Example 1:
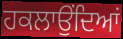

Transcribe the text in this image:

ਹਕਲਾਉਂਦਿਆਂ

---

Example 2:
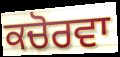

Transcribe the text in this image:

ਕਚੋਰਵਾ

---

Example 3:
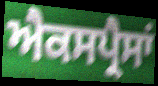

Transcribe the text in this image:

ਐਕਸਪ੍ਰੈਸਾਂ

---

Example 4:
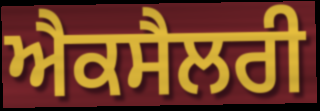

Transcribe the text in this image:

ਐਕਸੈਲਰੀ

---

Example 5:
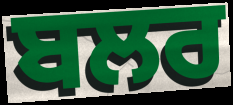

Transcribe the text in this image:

ਬਲਰ